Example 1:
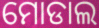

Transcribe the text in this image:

ମୋଡାଲ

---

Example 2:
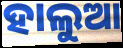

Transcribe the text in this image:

ହାଲୁଆ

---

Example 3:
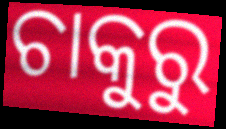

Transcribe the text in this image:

ଚାକୁରୁ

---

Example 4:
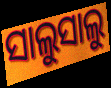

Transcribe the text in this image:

ସାଲୁସାଲୁ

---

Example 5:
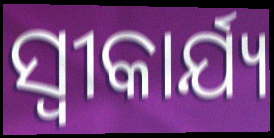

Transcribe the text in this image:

ସ୍ୱୀକାର୍ଯ୍ୟ